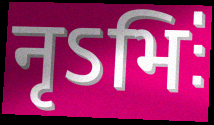
नृऽभिः॑